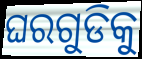
ଘରଗୁଡିକୁ